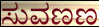
ಸುವಣಣ